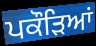
ਪਕੌਡ਼ਿਆਂ